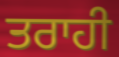
ਤਰਾਹੀ